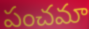
పంచమా